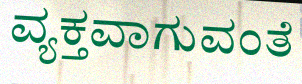
ವ್ಯಕ್ತವಾಗುವಂತೆ